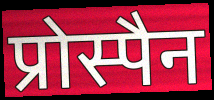
प्रोस्पैन